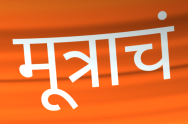
मूत्राचं